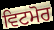
ਵਿਟਮੋਰ